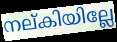
നല്കിയില്ലേ